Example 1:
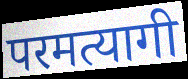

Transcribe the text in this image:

परमत्यागी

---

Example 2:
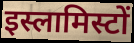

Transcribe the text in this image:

इस्लामिस्टों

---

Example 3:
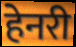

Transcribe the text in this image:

हेनरी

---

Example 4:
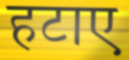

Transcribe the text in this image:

हटाए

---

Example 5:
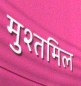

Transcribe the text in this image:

मुश्तमिल